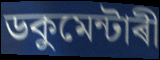
ডকুমেন্টাৰী